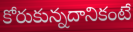
కోరుకున్నదానికంటే